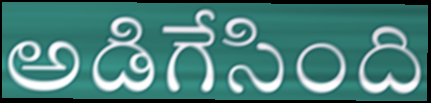
అడిగేసింది